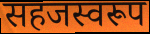
सहजस्वरूप